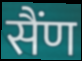
सैंण